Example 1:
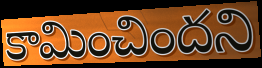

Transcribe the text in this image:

కామించిందని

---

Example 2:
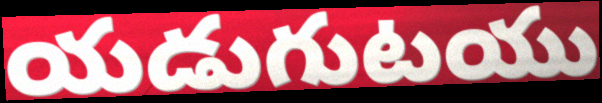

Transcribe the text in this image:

యడుగుటయు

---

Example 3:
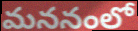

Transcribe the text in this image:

మననంలో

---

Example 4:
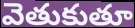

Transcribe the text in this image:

వెతుకుతూ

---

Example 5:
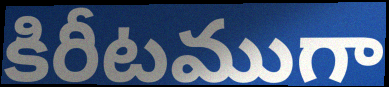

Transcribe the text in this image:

కిరీటముగా